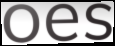
oes